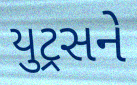
યુટ્રસને